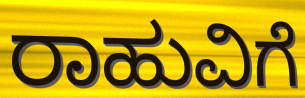
ರಾಹುವಿಗೆ